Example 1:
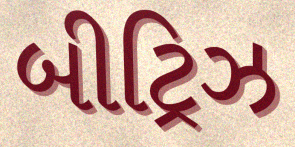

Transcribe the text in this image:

બીટ્રિઝ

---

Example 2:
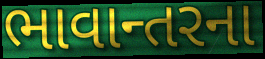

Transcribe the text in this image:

ભાવાન્તરના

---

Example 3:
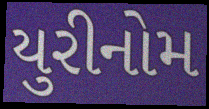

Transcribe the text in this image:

યુરીનોમ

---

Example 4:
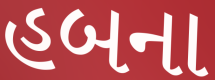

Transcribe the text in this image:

હબના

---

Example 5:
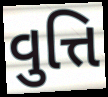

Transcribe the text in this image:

વુત્તિ